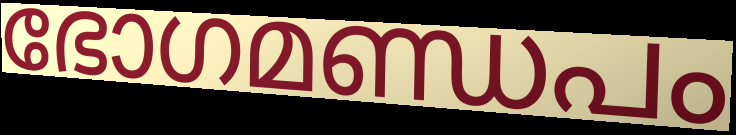
ഭോഗമണ്ഡപം